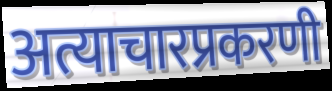
अत्याचारप्रकरणी